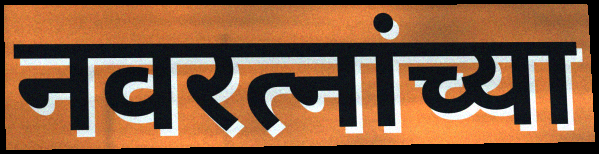
नवरत्नांच्या